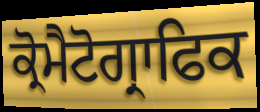
ਕ੍ਰੋਮੈਟੋਗ੍ਰਾਫਿਕ